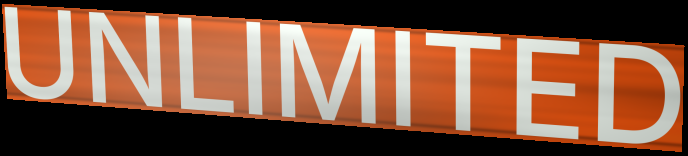
UNLIMITED